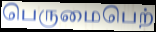
பெருமைபெற்